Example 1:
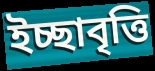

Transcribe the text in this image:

ইচ্ছাবৃত্তি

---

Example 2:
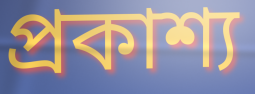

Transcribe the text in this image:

প্রকাশ্য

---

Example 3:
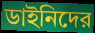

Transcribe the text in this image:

ডাইনিদের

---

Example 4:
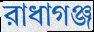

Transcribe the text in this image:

রাধাগঞ্জ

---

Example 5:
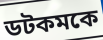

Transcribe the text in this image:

ডটকমকে